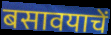
बसावयाचें